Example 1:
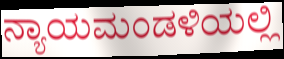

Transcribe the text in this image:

ನ್ಯಾಯಮಂಡಳಿಯಲ್ಲಿ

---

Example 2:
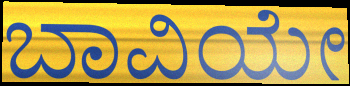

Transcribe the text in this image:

ಬಾವಿಯೇ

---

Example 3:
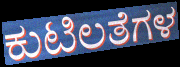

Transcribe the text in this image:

ಕುಟಿಲತೆಗಳ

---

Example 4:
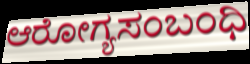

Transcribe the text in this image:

ಆರೋಗ್ಯಸಂಬಂಧಿ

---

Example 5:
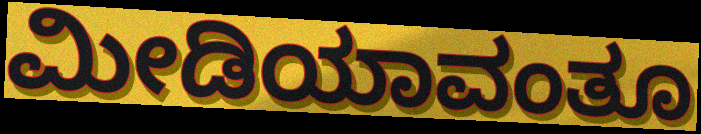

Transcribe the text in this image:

ಮೀಡಿಯಾವಂತೂ